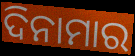
ଦିନାମାର